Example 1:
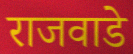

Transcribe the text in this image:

राजवाडे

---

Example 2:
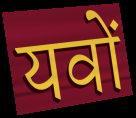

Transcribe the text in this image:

यवों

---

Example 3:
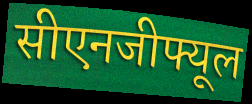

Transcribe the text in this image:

सीएनजीफ्यूल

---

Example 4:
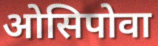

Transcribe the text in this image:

ओसिपोवा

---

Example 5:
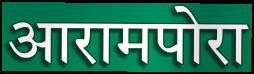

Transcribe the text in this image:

आरामपोरा